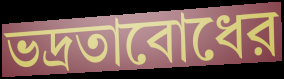
ভদ্রতাবোধের